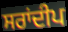
ਸਰਾਂਦੀਪ